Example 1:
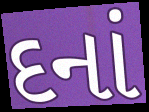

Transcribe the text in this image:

દનાં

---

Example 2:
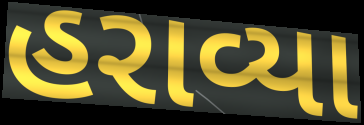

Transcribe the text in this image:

હરાવ્યા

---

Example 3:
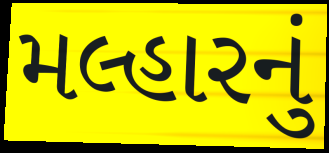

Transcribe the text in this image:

મલ્હારનું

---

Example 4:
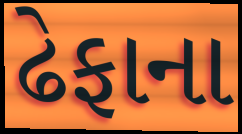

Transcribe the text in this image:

ઢેફાના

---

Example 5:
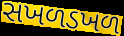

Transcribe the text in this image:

સખળડખળ